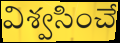
విశ్వసించే